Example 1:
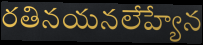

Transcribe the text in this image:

రతినయనలేహ్యేన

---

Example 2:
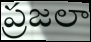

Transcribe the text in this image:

ప్రజలా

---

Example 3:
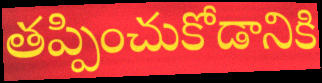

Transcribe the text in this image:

తప్పించుకోడానికి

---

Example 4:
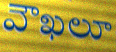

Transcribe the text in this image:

వౌఖలూ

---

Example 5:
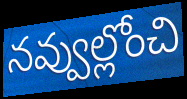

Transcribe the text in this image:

నవ్వుల్లోంచి